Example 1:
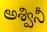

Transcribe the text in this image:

అశ్వినీ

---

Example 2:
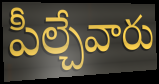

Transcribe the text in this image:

పీల్చేవారు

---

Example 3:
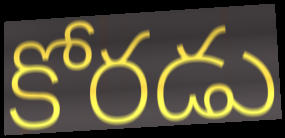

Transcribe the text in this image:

కోరడు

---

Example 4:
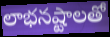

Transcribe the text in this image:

లాభనష్టాలతో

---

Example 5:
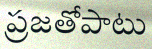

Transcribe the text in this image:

ప్రజతోపాటు